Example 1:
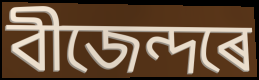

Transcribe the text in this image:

বীজেন্দৰে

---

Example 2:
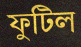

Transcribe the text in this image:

ফুটিল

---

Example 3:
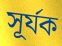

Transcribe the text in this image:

সূৰ্যক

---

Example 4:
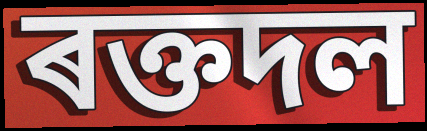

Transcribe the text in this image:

ৰক্তদল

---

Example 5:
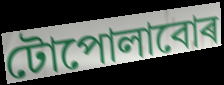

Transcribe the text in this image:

টোপোলাবোৰ